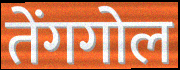
तेंगगोल